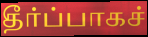
தீர்ப்பாகச்